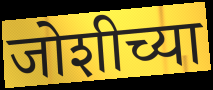
जोशीच्या